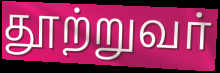
தூற்றுவர்